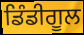
ਡਿੰਡੀਗੂਲ